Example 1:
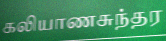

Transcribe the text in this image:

கலியாணசுந்தர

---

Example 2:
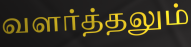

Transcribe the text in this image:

வளர்த்தலும்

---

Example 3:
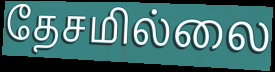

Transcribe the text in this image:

தேசமில்லை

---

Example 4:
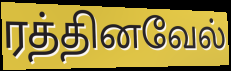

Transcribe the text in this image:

ரத்தினவேல்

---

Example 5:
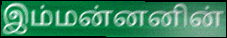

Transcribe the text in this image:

இம்மன்னனின்